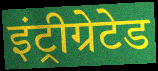
इंट्रीग्रेटेड